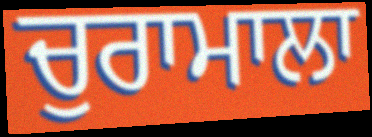
ਚੁਰਾਮਾਲਾ